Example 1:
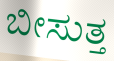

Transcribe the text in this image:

ಬೀಸುತ್ತ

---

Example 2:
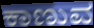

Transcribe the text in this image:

ಕಾಣುವ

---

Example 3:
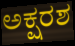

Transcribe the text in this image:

ಅಕ್ಷರಶ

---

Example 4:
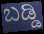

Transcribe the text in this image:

ಬಡ್ಡಿ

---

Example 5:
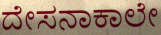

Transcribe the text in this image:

ದೇಸನಾಕಾಲೇ